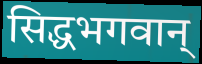
सिद्धभगवान्